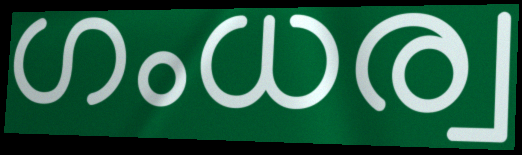
ഗംധര്വ